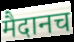
मैदानच